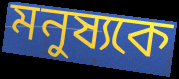
মনুষ্যকে